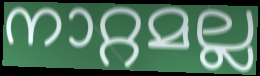
നാറ്റമല്ല